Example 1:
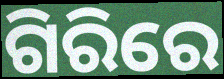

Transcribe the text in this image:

ଗିରିରେ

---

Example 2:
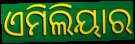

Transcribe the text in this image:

ଏମିଲିୟାର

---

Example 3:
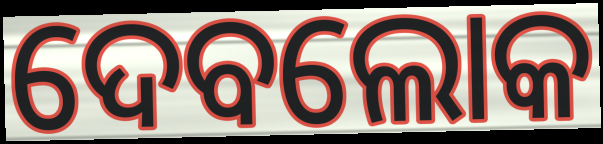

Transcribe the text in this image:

ଦେବଲୋକ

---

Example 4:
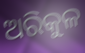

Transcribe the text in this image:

ଅରିକୁଳ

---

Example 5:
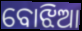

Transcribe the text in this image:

ବୋଝିଆ